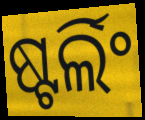
ଷ୍ଟର୍ଲିଂ